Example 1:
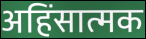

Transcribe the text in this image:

अहिंसात्मक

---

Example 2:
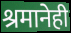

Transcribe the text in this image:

श्रमानेही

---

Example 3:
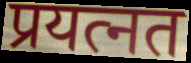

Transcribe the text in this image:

प्रयत्नत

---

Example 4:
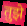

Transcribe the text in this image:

तुझे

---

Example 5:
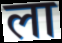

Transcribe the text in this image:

ला